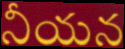
నీయన